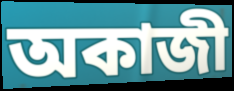
অকাজী